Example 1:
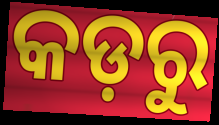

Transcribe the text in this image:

କଡ଼ରୁ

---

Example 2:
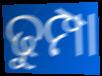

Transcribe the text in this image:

ଢୁମ୍ପା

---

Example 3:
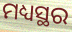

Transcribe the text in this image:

ମଧ୍ୟସ୍ଥର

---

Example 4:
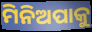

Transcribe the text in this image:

ମିନିଅପାକୁ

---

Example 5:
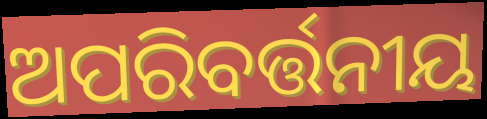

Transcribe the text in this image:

ଅପରିବର୍ତ୍ତନୀୟ